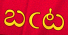
బఁట